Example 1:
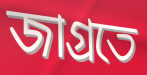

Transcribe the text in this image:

জাগ্রতে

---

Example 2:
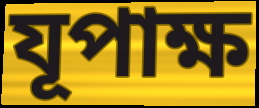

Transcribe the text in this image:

যূপাক্ষ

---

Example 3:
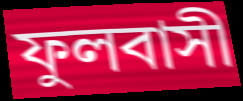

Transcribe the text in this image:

ফুলবাসী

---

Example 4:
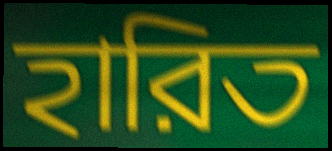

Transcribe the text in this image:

হারিত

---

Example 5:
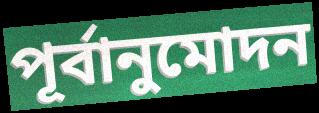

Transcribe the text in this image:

পূর্বানুমোদন